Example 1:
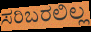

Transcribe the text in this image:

ಸರಿಬರಲಿಲ್ಲ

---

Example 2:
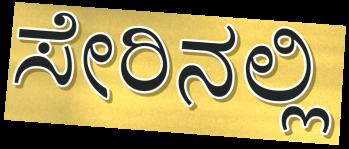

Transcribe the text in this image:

ಸೇರಿನಲ್ಲಿ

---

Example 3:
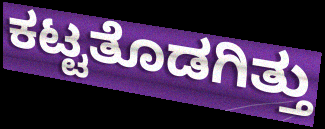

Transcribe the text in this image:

ಕಟ್ಟತೊಡಗಿತ್ತು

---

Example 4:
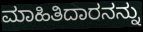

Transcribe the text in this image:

ಮಾಹಿತಿದಾರನನ್ನು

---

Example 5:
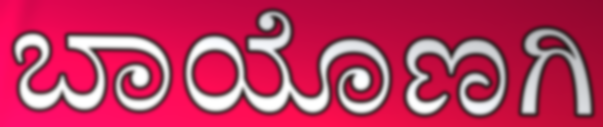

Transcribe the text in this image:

ಬಾಯೊಣಗಿ